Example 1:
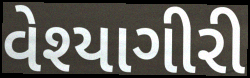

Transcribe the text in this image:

વેશ્યાગીરી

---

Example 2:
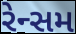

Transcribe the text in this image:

રેન્સમ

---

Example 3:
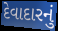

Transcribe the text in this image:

દેવાદારનું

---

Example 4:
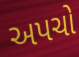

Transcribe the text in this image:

અપચો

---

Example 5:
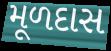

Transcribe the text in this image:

મૂળદાસ